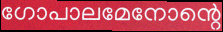
ഗോപാലമേനോന്റെ